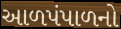
આળપંપાળનો